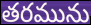
తరమును